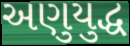
અણુયુદ્ધ